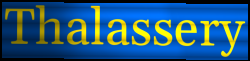
Thalassery